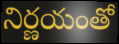
నిర్ణయంతో